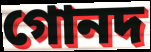
গোনদ